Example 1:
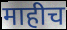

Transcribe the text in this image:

माहीच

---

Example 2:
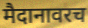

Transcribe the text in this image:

मैदानावरच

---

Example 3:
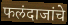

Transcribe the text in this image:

फलंदाजांचे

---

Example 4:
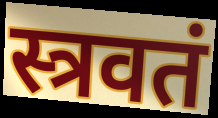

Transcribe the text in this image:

स्त्रवतं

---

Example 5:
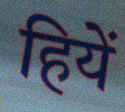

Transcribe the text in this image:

हियें